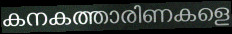
കനകത്താരിണകളെ